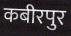
कबीरपुर